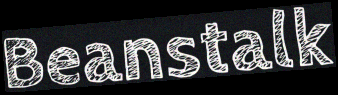
Beanstalk